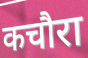
कचौरा